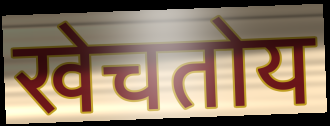
खेचतोय